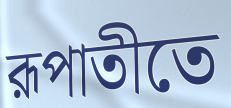
রূপাতীতে